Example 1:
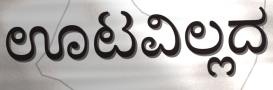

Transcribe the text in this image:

ಊಟವಿಲ್ಲದ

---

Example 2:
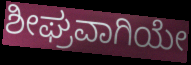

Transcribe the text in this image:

ಶೀಘ್ರವಾಗಿಯೇ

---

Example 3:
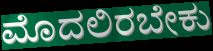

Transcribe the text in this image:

ಮೊದಲಿರಬೇಕು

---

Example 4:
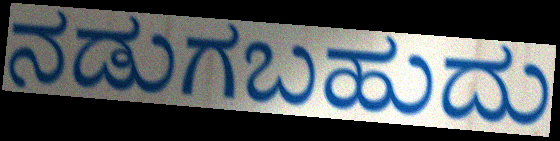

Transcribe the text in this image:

ನಡುಗಬಹುದು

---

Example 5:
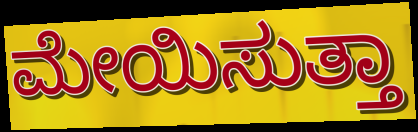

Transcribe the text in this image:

ಮೇಯಿಸುತ್ತಾ